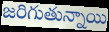
జరిగుతున్నాయి